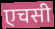
एचसी